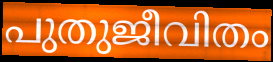
പുതുജീവിതം